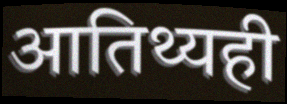
आतिथ्यही